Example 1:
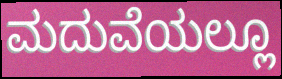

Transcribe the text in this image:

ಮದುವೆಯಲ್ಲೂ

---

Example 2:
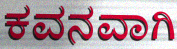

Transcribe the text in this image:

ಕವನವಾಗಿ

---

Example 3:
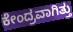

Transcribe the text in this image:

ಕೇಂದ್ರವಾಗಿತ್ತು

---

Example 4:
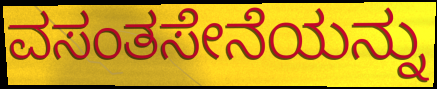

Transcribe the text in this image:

ವಸಂತಸೇನೆಯನ್ನು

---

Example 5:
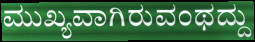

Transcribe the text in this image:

ಮುಖ್ಯವಾಗಿರುವಂಥದ್ದು